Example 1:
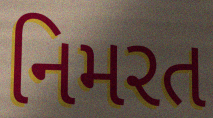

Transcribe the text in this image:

નિમરત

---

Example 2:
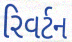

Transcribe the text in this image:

રિવર્ટન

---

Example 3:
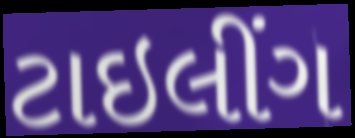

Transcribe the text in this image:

ટાઇલીંગ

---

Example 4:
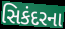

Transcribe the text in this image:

સિકંદરના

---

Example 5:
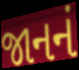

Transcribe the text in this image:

જાનનં